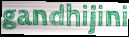
gandhijini